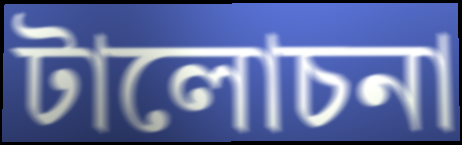
টালোচনা